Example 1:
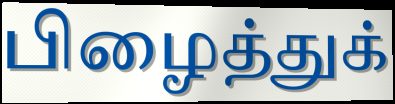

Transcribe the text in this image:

பிழைத்துக்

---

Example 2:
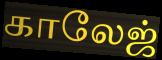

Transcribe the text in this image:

காலேஜ்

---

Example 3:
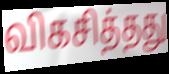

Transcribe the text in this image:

விகசித்தது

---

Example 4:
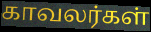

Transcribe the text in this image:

காவலர்கள்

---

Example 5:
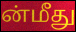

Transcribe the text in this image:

ன்மீது